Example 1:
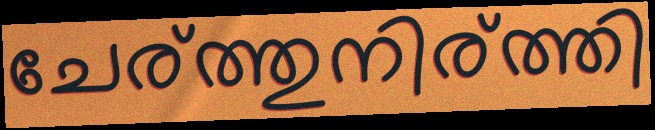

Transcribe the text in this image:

ചേര്ത്തുനിര്ത്തി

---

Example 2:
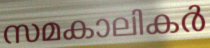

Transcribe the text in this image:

സമകാലികർ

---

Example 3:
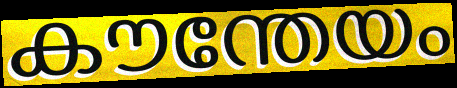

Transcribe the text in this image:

കൗന്തേയം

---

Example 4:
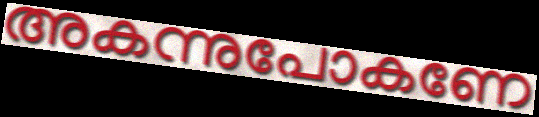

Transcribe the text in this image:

അകന്നുപോകണേ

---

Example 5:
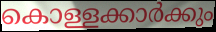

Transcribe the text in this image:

കൊള്ളക്കാർക്കും